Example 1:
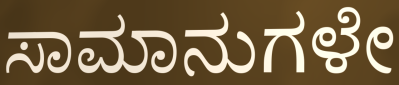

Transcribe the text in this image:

ಸಾಮಾನುಗಳೇ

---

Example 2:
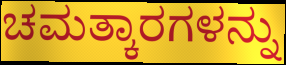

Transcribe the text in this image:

ಚಮತ್ಕಾರಗಳನ್ನು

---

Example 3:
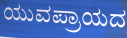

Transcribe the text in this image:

ಯುವಪ್ರಾಯದ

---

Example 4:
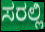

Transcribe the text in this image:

ಸರಲ್ಲಿ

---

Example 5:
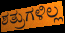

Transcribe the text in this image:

ಶತ್ರುಗಳಿಲ್ಲ